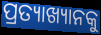
ପ୍ରତ୍ୟାଖ୍ୟାନକୁ